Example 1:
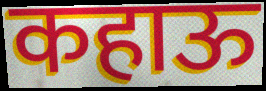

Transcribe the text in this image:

कहाऊ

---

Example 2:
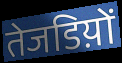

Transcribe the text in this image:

तेजडिय़ों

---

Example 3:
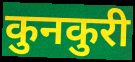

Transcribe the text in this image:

कुनकुरी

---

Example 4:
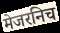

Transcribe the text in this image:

मेजरनिच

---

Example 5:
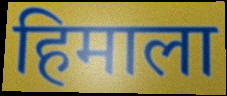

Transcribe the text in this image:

हिमाला